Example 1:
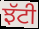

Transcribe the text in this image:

ਝੱਟੀ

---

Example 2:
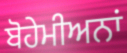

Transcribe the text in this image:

ਬੋਹੇਮੀਅਨਾਂ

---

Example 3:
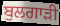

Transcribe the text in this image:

ਬੁਲਗਾੜੀ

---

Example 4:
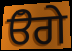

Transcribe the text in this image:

ੳੱਗੇ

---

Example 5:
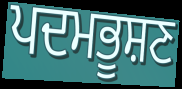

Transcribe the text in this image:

ਪਦਮਭੂਸ਼ਣ